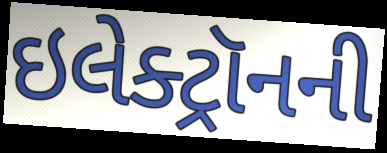
ઇલેક્ટ્રૉનની